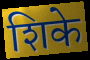
शिके